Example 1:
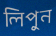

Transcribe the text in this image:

লিপুন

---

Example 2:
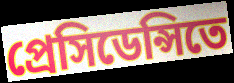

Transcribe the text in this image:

প্রেসিডেন্সিতে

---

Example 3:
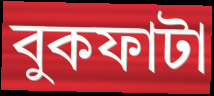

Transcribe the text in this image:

বুকফাটা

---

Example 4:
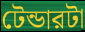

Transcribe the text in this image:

টেন্ডারটা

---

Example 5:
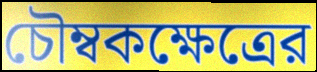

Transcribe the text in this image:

চৌম্বকক্ষেত্রের